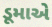
ડૂમાએ